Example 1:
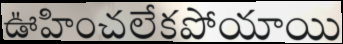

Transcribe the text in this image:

ఊహించలేకపోయాయి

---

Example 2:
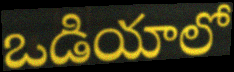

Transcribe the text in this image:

ఒడియాలో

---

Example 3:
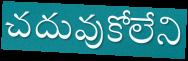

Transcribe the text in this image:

చదువుకోలేని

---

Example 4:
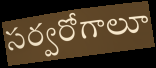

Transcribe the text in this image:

సర్వరోగాలూ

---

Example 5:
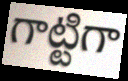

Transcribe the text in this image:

గాట్టిగా